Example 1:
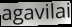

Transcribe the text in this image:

agavilai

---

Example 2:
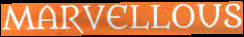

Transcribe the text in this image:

MARVELLOUS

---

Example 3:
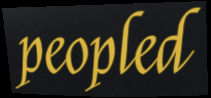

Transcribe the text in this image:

peopled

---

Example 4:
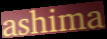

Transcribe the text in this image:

ashima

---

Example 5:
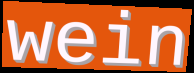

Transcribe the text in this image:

wein